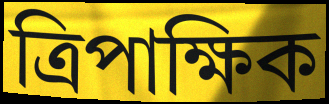
ত্রিপাক্ষিক